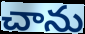
చాను